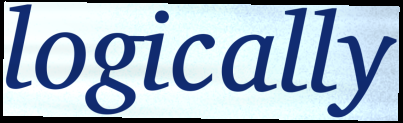
logically